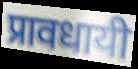
प्रावधायी